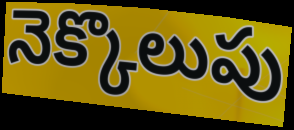
నెక్కొలుపు